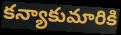
కన్యాకుమారికి